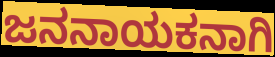
ಜನನಾಯಕನಾಗಿ